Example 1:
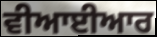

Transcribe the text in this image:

ਵੀਆਈਆਰ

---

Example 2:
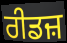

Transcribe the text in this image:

ਰੀਡਜ਼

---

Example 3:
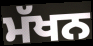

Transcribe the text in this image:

ਮੱਖਨ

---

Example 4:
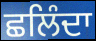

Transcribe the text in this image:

ਛਲਿੰਦਾ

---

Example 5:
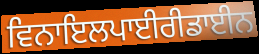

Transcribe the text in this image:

ਵਿਨਾਇਲਪਾਈਰੀਡਾਈਨ